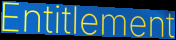
Entitlement